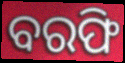
ବରଫି